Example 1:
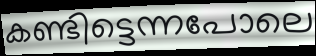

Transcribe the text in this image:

കണ്ടിട്ടെന്നപോലെ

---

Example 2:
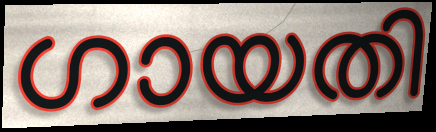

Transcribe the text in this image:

ഗായതി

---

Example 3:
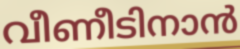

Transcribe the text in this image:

വീണീടിനാൻ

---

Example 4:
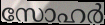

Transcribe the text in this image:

സോഹർ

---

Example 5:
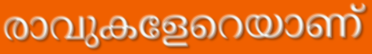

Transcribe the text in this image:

രാവുകളേറെയാണ്